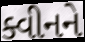
ક્વીનને